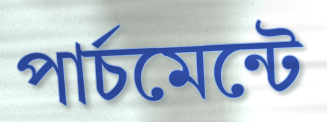
পার্চমেন্টে